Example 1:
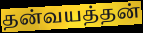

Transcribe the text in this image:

தன்வயத்தன்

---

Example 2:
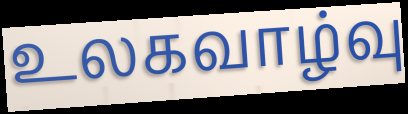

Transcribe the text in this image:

உலகவாழ்வு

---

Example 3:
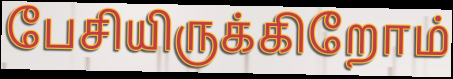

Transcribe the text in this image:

பேசியிருக்கிறோம்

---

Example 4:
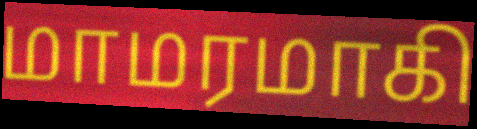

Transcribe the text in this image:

மாமரமாகி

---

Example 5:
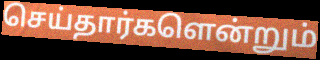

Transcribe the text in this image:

செய்தார்களென்றும்